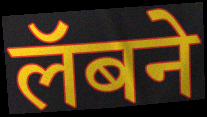
लॅबने